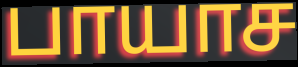
பாயாச